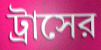
ট্রাসের